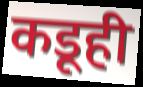
कडूही